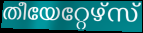
തീയേറ്റേഴ്സ്